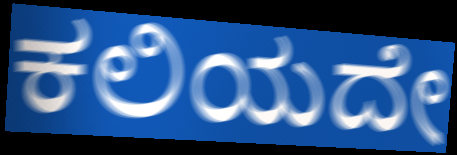
ಕಲಿಯದೇ